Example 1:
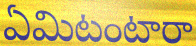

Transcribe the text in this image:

ఏమిటంటారా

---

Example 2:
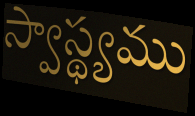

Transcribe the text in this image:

స్వాస్థ్యము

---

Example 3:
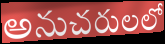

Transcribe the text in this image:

అనుచరులలో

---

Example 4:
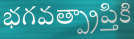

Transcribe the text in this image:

భగవత్ప్రాప్తికి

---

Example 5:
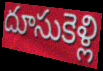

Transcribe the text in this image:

దూసుకెళ్లి